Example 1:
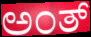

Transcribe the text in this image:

ಅಂತ್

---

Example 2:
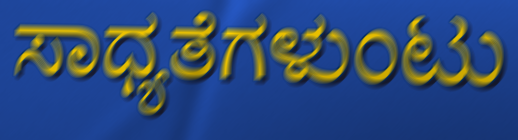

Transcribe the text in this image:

ಸಾಧ್ಯತೆಗಳುಂಟು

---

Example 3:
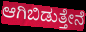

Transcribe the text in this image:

ಆಗಿಬಿಡುತ್ತೇನೆ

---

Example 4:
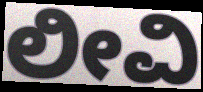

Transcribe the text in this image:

ಲೀವಿ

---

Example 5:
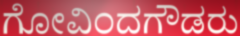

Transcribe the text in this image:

ಗೋವಿಂದಗೌಡರು